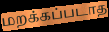
மறக்கப்படாத